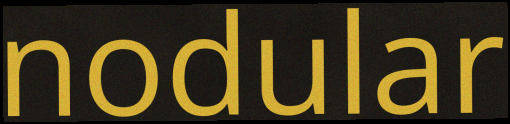
nodular